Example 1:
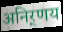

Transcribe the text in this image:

अनिर्णय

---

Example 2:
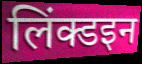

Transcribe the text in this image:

लिंक्डइन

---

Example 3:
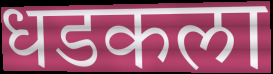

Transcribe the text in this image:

धडकला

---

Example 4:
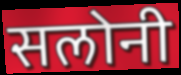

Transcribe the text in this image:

सलोनी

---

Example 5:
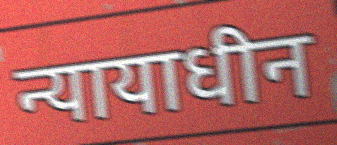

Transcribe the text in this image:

न्यायाधीन